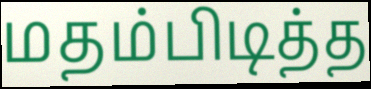
மதம்பிடித்த